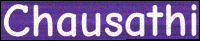
Chausathi